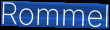
Rommel